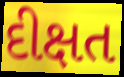
દીક્ષત